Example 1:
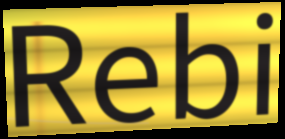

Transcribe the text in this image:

Rebi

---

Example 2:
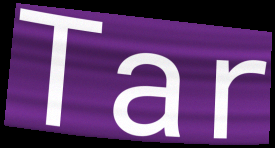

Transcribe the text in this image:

Tar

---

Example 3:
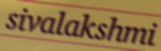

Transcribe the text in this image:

sivalakshmi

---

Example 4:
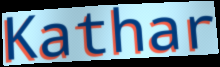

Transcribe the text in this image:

Kathar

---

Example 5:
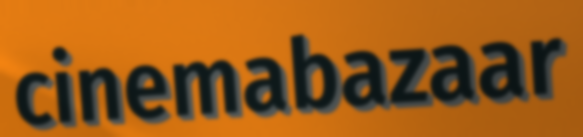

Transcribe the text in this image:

cinemabazaar